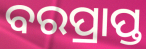
ବରପ୍ରାପ୍ତ